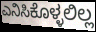
ಎನಿಸಿಕೊಳ್ಳಲಿಲ್ಲ